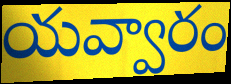
యవ్వారం